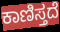
ಕಾಣಿಸ್ತದೆ